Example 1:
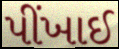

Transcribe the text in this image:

પીંખાઈ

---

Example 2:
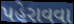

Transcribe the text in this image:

પહેરાવવા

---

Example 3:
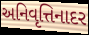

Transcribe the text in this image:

અનિવૃત્તિનાદર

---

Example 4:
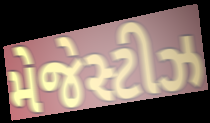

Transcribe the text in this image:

મેજેસ્ટીઝ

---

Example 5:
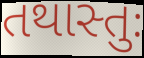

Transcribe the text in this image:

તથાસ્તુઃ